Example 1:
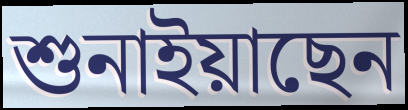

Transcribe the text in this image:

শুনাইয়াছেন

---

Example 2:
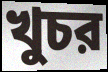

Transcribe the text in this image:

খুচর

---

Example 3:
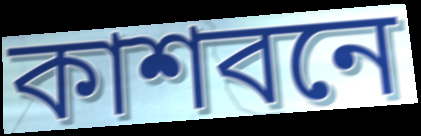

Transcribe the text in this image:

কাশবনে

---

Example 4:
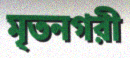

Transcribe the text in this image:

মৃতনগরী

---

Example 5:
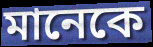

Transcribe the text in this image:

মানেকে